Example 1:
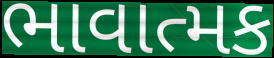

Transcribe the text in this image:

ભાવાત્મક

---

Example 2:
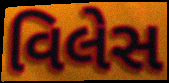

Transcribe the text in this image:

વિલેસ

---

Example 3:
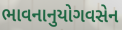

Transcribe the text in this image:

ભાવનાનુયોગવસેન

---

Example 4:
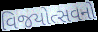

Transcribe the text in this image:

વિજયોત્સવનો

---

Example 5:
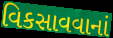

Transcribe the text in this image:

વિકસાવવાનાં